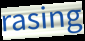
rasing